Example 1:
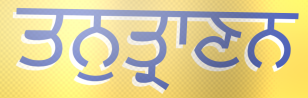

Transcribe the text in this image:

ਤਨੁਤ੍ਰਾਣਨ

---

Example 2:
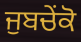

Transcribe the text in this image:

ਜੁਬਚੇਂਕੋ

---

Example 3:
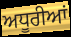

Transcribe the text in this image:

ਅਧੂਰੀਆਂ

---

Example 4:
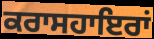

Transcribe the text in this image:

ਕਰਾਸਹਾਇਰਾਂ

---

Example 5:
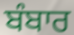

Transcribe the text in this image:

ਬੰਬਾਰ